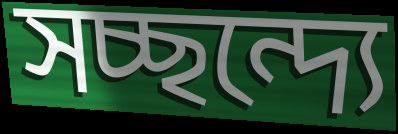
সচ্ছন্দ্যে